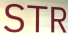
STR